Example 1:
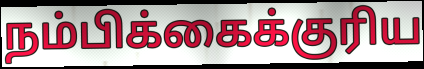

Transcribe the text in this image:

நம்பிக்கைக்குரிய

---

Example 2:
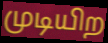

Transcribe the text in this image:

முடியிற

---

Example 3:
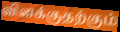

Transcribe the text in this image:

விளக்குதற்கும்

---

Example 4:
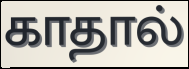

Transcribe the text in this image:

காதால்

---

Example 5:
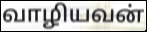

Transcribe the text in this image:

வாழியவன்